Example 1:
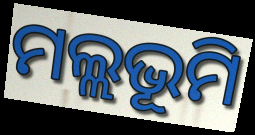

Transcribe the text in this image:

ମଲ୍ଲଭୂମି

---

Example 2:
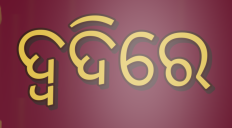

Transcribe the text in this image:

ଦ୍ଵଦିରେ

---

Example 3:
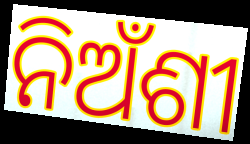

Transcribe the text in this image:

ନିଅଁଶୀ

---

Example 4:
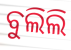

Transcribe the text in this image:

ବୁଲିଲି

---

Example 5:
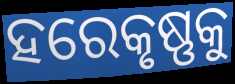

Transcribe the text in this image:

ହରେକୃଷ୍ଣକୁ